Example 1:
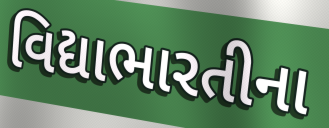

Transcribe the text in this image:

વિદ્યાભારતીના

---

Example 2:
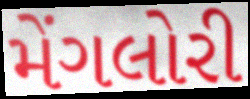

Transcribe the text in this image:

મેંગલોરી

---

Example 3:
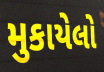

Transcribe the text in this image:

મુકાયેલો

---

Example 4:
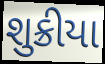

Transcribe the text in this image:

શુક્રીયા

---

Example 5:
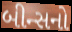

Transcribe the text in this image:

બીન્સનો